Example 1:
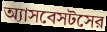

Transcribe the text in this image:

অ্যাসবেসটসের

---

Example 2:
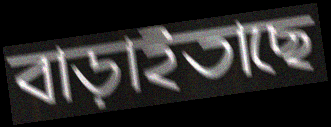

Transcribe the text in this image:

বাড়াইতাছে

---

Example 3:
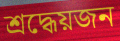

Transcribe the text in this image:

শ্রদ্ধেয়জন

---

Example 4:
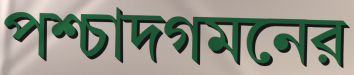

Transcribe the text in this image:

পশ্চাদগমনের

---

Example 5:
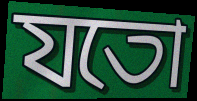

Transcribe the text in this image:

যতো